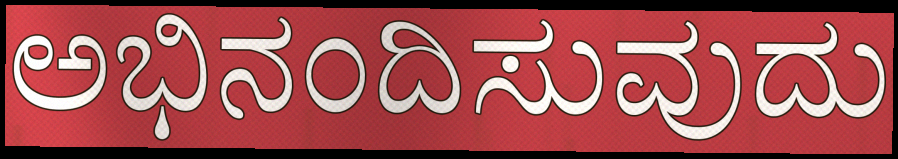
ಅಭಿನಂದಿಸುವುದು